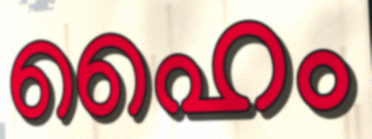
ഹൈം